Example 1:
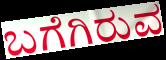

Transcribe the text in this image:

ಬಗೆಗಿರುವ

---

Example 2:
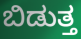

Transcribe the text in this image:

ಬಿಡುತ್ತ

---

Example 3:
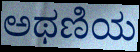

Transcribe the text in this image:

ಅಥಣಿಯ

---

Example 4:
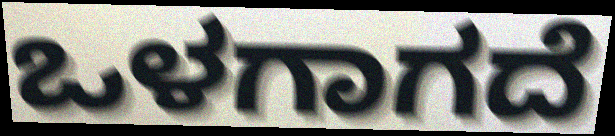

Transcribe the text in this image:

ಒಳಗಾಗದೆ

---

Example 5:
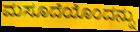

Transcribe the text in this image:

ಮಸೂದೆಯೊಂದನ್ನು